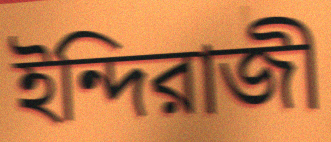
ইন্দিরাজী